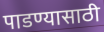
पाडण्यासाठी